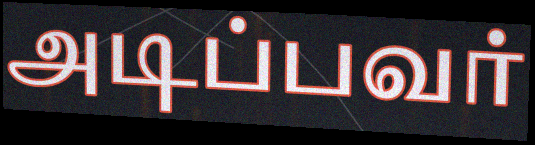
அடிப்பவர்